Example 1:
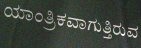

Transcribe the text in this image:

ಯಾಂತ್ರಿಕವಾಗುತ್ತಿರುವ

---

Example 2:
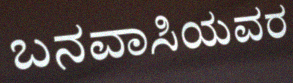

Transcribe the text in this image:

ಬನವಾಸಿಯವರ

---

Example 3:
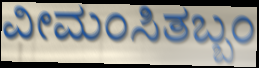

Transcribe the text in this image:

ವೀಮಂಸಿತಬ್ಬಂ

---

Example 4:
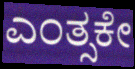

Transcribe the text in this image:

ಎಂತ್ಸಕೇ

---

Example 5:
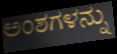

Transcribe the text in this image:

ಅಂಶಗಳನ್ನು